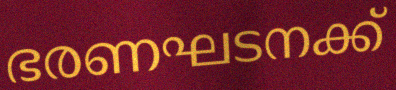
ഭരണഘടനക്ക്